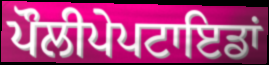
ਪੌਲੀਪੇਪਟਾਇਡਾਂ